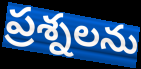
ప్రశ్నలను